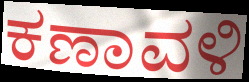
ಕಣಾವಳಿ